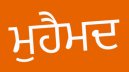
ਮੁਹੈਮਦ